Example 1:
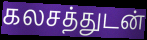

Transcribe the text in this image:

கலசத்துடன்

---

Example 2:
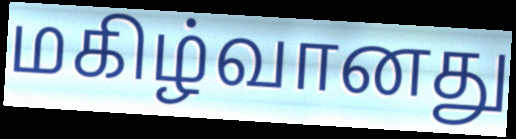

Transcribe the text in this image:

மகிழ்வானது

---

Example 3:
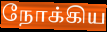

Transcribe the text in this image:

நோக்கிய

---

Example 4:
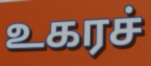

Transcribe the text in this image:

உகரச்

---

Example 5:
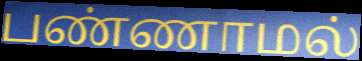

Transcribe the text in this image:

பண்ணாமல்